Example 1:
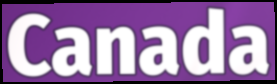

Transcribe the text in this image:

Canada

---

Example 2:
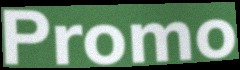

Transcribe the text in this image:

Promo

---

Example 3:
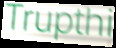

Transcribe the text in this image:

Trupthi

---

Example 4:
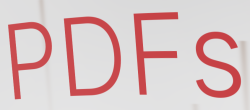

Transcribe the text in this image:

PDFs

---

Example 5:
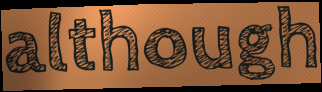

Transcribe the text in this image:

although